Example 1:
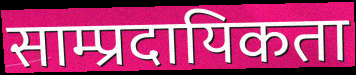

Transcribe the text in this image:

साम्प्रदायिकता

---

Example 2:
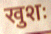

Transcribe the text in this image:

खुशः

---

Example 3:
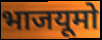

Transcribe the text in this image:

भाजयूमो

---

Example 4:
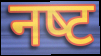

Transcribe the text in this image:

नष्‍ट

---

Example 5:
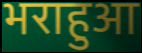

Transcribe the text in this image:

भराहुआ